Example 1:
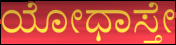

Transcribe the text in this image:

ಯೋಧಾಸ್ತೇ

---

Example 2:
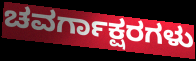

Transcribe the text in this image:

ಚವರ್ಗಾಕ್ಷರಗಳು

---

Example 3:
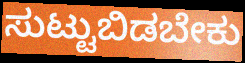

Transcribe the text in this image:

ಸುಟ್ಟುಬಿಡಬೇಕು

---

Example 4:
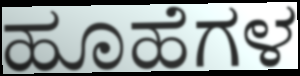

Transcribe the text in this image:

ಹೂಹೆಗಳ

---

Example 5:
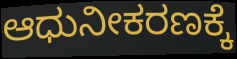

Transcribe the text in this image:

ಆಧುನೀಕರಣಕ್ಕೆ